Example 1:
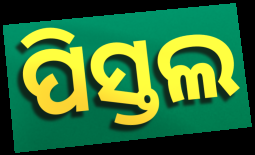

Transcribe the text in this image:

ପିସ୍ତଲ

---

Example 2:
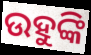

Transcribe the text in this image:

ଉହୁଙ୍କି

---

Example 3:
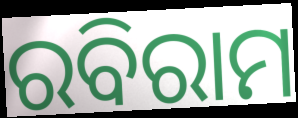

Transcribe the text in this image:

ରବିରାମ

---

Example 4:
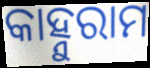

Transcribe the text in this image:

କାହ୍ନୁରାମ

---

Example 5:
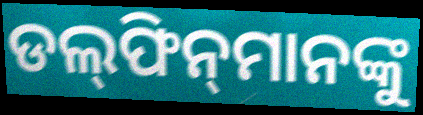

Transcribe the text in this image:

ଡଲ୍‍ଫିନ୍‍ମାନଙ୍କୁ